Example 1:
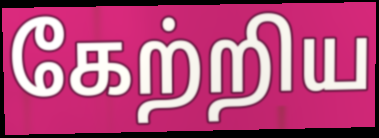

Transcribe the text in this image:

கேற்றிய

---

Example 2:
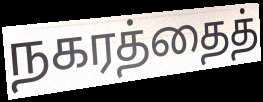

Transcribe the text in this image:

நகரத்தைத்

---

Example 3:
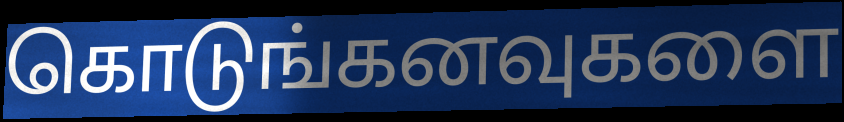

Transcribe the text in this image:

கொடுங்கனவுகளை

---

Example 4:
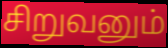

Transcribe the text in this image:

சிறுவனும்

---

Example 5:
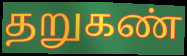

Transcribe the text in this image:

தறுகண்